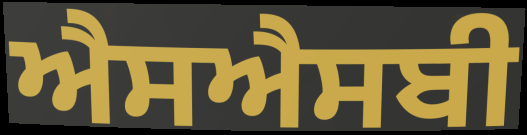
ਐਸਐਸਬੀ